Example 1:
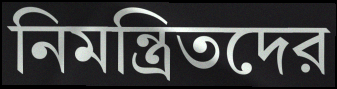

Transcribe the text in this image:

নিমন্ত্রিতদের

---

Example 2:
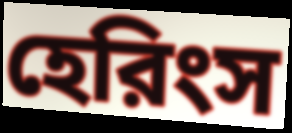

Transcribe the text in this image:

হেরিংস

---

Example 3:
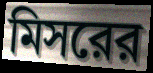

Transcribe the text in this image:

মিসরের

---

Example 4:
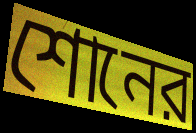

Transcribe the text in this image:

শোনের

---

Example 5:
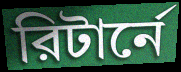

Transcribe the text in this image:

রিটার্নে